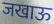
जखाऊ